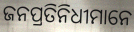
ଜନପ୍ରତିନିଧୀମାନେ